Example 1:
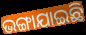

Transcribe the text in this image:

ଭଙ୍ଗାଯାଇଛି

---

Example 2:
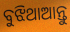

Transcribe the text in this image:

ବୁଝିଥାଆନ୍ତୁ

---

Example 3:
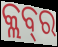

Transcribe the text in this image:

କ୍ଲବ୍‌ର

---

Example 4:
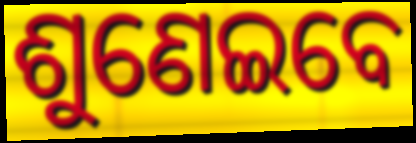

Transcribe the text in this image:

ଶୁଣେଇବେ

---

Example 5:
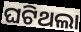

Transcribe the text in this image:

ଘଟିଥଲା